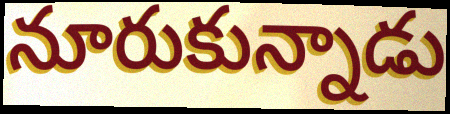
నూరుకున్నాడు